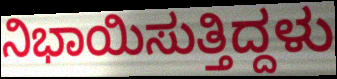
ನಿಭಾಯಿಸುತ್ತಿದ್ದಳು